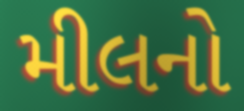
મીલનો